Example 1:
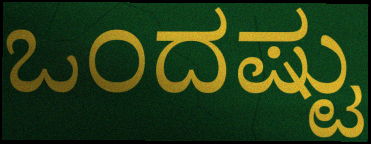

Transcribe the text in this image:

ಒಂದಷ್ಟು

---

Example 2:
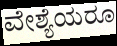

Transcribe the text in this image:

ವೇಶ್ಯೆಯರೂ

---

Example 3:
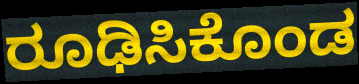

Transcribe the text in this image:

ರೂಢಿಸಿಕೊಂಡ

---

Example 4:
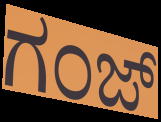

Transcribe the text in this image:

ಗಂಜ್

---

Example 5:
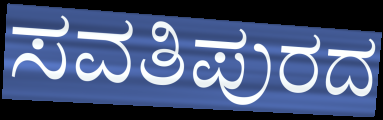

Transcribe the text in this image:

ಸವತಿಪುರದ